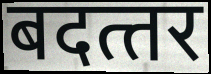
बदत्‍तर